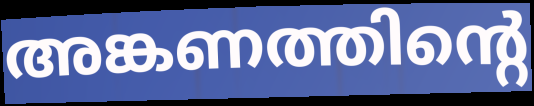
അങ്കണത്തിന്റെ